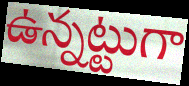
ఉన్నట్టుగా